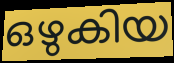
ഒഴുകിയ